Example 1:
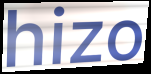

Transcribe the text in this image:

hizo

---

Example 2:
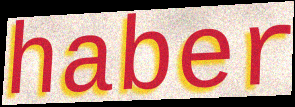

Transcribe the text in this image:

haber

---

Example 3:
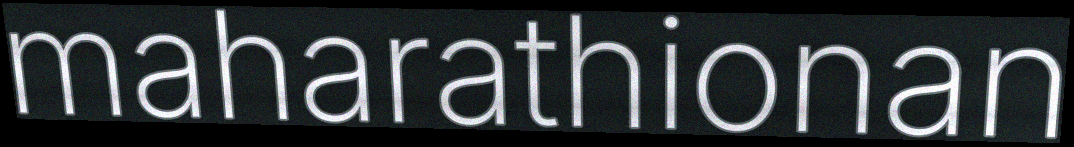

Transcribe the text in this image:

maharathionan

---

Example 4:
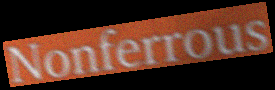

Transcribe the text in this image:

Nonferrous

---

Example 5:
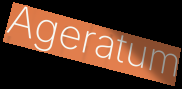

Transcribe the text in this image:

Ageratum